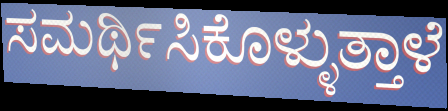
ಸಮರ್ಥಿಸಿಕೊಳ್ಳುತ್ತಾಳೆ